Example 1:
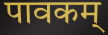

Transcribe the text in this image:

पावकम्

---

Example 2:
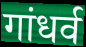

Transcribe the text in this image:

गांधर्व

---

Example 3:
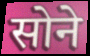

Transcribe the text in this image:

सोने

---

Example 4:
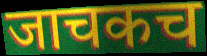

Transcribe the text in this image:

जाचकच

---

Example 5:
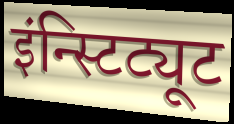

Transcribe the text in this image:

इंन्स्टिट्यूट